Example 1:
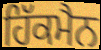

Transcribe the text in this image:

ਹਿੱਕਮੈਨ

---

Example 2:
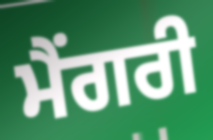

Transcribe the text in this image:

ਮੈਂਗਰੀ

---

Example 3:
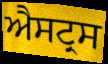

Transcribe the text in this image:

ਐਸਟ੍ਰਸ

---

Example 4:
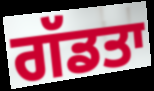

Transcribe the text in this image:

ਗੱਡਤਾ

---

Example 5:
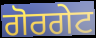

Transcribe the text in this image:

ਗੋਰਗੇਟ